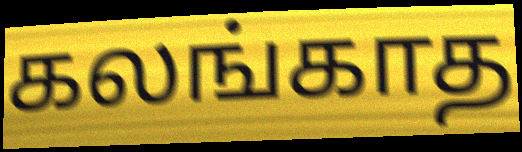
கலங்காத